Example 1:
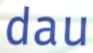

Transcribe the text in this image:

dau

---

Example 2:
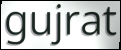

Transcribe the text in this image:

gujrat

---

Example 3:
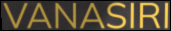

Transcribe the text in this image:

VANASIRI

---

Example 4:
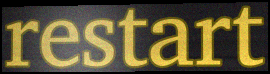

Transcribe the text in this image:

restart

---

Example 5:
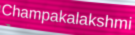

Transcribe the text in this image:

Champakalakshmi